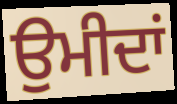
ਉਮੀਦਾਂ